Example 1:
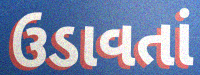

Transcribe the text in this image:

ઉડાવતાં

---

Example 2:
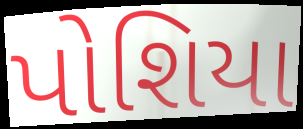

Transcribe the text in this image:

પોશિયા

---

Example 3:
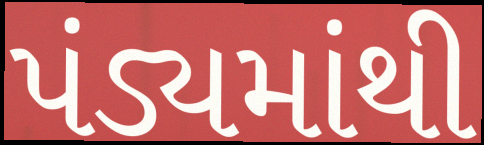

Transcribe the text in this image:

પંડ્યમાંથી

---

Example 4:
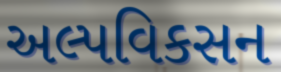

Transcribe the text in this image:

અલ્પવિકસન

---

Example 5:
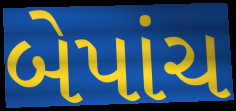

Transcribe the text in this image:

બેપાંચ